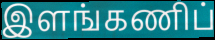
இளங்கணிப்